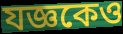
যজ্ঞকেও